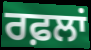
ਰਫ਼ਲਾਂ